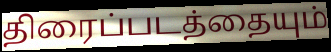
திரைப்படத்தையும்